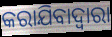
କରାଯିବାଦ୍ୱାରା